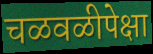
चळवळीपेक्षा